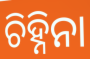
ଚିହ୍ନିନା